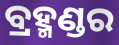
ବ୍ରହ୍ମଣ୍ଡର